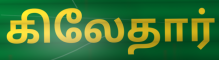
கிலேதார்